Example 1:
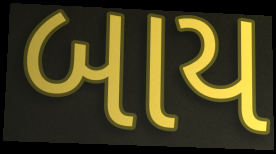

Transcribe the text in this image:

બાય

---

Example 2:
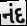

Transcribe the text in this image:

નંદ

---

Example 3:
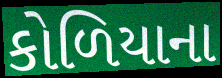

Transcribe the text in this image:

કોળિયાના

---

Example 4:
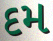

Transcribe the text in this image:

દમ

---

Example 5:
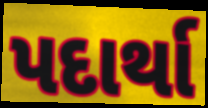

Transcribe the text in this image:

પદાર્થા